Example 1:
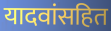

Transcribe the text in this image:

यादवांसहित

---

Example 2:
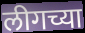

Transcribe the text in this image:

लीगच्या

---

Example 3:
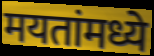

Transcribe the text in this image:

मयतांमध्ये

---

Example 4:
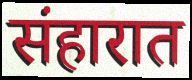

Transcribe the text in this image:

संहारात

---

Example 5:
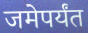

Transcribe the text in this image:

जमेपर्यंत